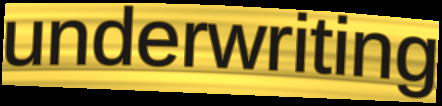
underwriting